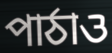
পাঠাও